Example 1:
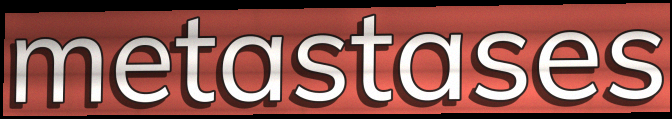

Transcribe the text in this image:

metastases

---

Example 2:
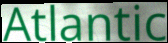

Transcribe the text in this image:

Atlantic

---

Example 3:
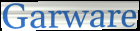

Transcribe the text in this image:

Garware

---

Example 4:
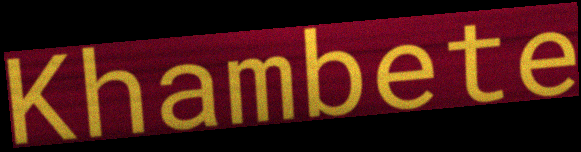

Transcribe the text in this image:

Khambete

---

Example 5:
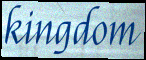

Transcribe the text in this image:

kingdom